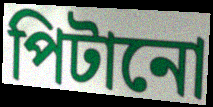
পিটানো